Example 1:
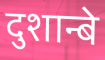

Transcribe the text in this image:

दुशान्बे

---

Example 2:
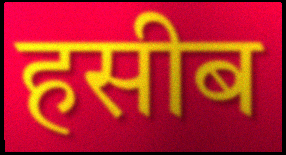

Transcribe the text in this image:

हसीब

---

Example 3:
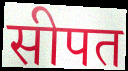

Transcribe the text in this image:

सीपत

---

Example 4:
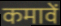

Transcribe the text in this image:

कमावें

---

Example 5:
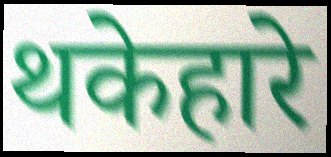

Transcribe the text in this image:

थकेहारे